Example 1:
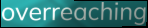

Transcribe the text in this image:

overreaching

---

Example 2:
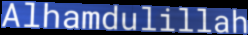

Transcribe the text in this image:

Alhamdulillah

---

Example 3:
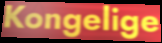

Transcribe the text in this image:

Kongelige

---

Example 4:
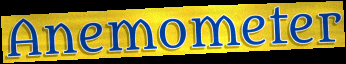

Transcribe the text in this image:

Anemometer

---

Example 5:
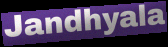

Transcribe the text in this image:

Jandhyala